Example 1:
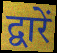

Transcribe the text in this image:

द्वारें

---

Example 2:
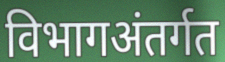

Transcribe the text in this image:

विभागअंतर्गत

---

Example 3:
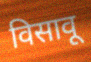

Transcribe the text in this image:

विसावू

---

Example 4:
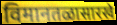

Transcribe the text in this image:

विमानतळासारखे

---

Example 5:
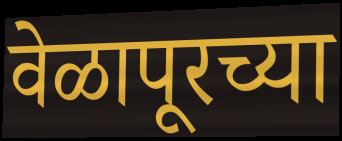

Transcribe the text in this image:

वेळापूरच्या